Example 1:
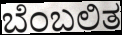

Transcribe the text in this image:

ಬೆಂಬಲಿತ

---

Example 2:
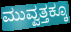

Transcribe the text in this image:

ಮುವ್ವತ್ತಕ್ಕೂ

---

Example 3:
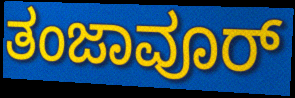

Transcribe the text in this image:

ತಂಜಾವೂರ್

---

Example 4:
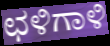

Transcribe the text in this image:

ಛಳಿಗಾಳಿ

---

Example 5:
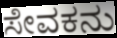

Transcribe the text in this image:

ಸೇವಕನು